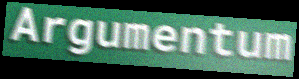
Argumentum